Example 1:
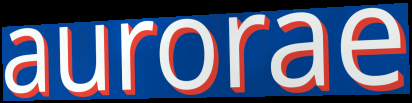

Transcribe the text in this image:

aurorae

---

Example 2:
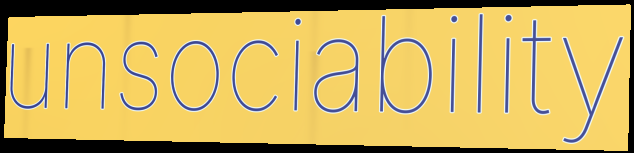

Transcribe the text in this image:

unsociability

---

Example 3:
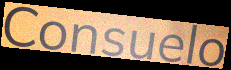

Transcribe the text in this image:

Consuelo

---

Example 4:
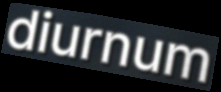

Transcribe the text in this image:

diurnum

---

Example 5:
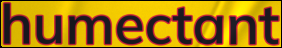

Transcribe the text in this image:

humectant